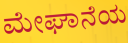
ಮೇಘಾನೆಯ